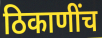
ठिकाणींच